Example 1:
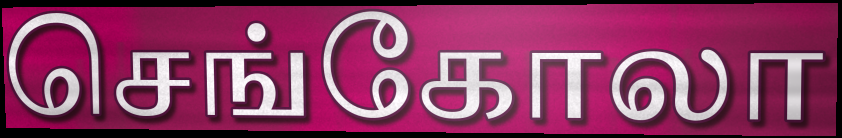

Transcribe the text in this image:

செங்கோலா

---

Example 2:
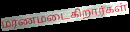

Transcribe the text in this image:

மரணமடைகிறார்கள்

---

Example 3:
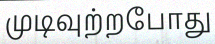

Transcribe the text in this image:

முடிவுற்றபோது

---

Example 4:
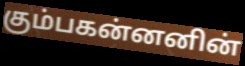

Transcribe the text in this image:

கும்பகன்னனின்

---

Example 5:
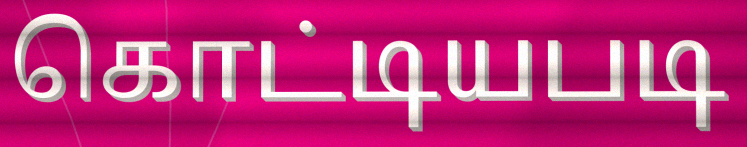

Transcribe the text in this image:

கொட்டியபடி